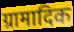
ग्रामादिक